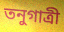
তনুগাত্রী